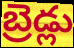
బ్రెడ్లు